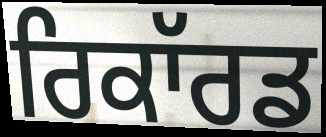
ਰਿਕਾੱਰਡ